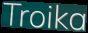
Troika